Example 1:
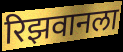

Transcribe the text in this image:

रिझवानला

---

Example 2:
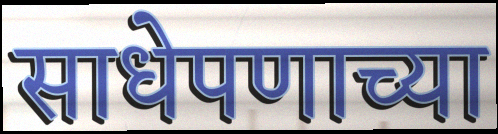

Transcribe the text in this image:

साधेपणाच्या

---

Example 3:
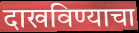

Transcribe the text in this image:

दाखविण्याचा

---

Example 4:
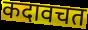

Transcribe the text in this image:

कदावचत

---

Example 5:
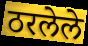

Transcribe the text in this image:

ठरलेले